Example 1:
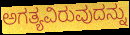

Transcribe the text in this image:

ಅಗತ್ಯವಿರುವುದನ್ನು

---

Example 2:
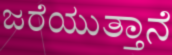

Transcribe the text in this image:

ಜರೆಯುತ್ತಾನೆ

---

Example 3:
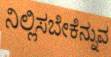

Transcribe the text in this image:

ನಿಲ್ಲಿಸಬೇಕೆನ್ನುವ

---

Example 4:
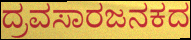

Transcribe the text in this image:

ದ್ರವಸಾರಜನಕದ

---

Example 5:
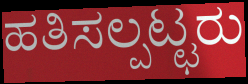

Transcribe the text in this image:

ಹತಿಸಲ್ಪಟ್ಟರು